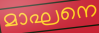
മാഘനെ